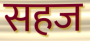
सहज